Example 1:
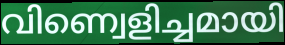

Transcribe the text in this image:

വിണ്വെളിച്ചമായി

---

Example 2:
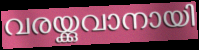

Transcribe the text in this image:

വരയ്ക്കുവാനായി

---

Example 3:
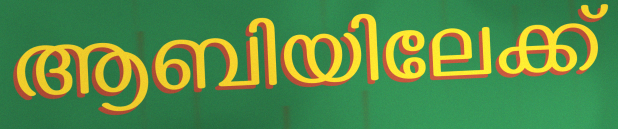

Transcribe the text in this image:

ആബിയിലേക്ക്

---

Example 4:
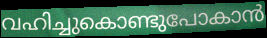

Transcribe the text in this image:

വഹിച്ചുകൊണ്ടുപോകാൻ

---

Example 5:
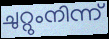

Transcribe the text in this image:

ചുറ്റുംനിന്ന്